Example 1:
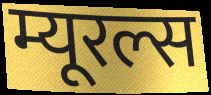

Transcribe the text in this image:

म्यूरल्स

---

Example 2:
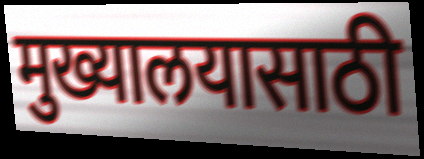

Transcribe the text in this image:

मुख्यालयासाठी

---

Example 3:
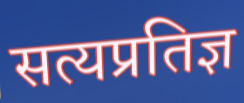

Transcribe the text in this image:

सत्यप्रतिज्ञ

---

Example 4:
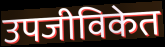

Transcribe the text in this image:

उपजीविकेत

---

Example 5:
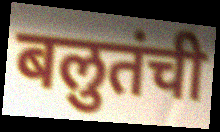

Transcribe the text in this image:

बलुतंची